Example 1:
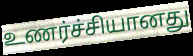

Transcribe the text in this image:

உணர்ச்சியானது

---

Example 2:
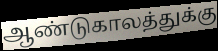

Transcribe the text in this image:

ஆண்டுகாலத்துக்கு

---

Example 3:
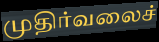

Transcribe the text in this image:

முதிர்வலைச்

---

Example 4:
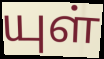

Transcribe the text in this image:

யுள்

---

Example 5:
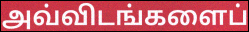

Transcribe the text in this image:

அவ்விடங்களைப்